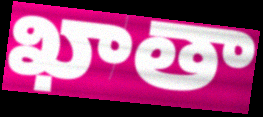
ఖాతా